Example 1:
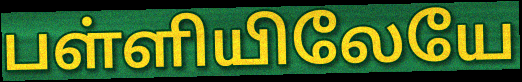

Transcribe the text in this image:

பள்ளியிலேயே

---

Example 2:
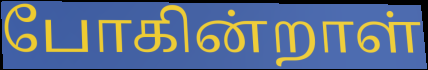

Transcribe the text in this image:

போகின்றாள்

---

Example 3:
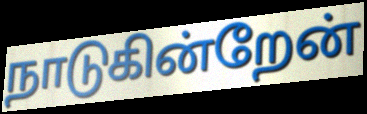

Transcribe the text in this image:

நாடுகின்றேன்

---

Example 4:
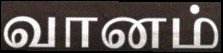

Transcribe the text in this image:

வானம்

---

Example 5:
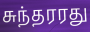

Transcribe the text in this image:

சுந்தரரது